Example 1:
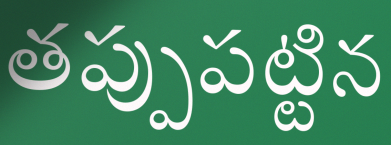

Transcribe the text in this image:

తప్పుపట్టిన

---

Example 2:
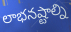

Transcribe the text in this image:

లాభనష్టాల్ని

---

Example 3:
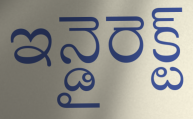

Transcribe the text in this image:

ఇన్డైరెక్ట్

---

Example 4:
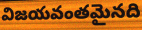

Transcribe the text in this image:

విజయవంతమైనది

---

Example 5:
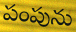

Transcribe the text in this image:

పంపును